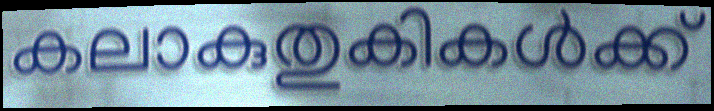
കലാകുതുകികൾക്ക്